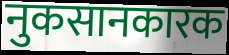
नुकसानकारक